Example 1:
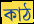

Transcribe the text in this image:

কাঠ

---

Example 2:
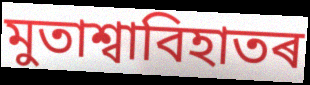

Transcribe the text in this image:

মুতাশ্বাবিহাতৰ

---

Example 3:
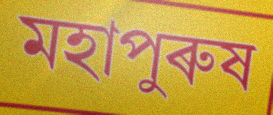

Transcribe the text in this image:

মহাপুৰুষ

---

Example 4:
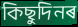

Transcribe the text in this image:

কিছুদিনৰ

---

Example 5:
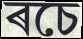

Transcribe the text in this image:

ৰচে